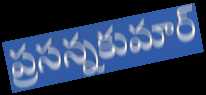
ప్రసన్నకుమార్